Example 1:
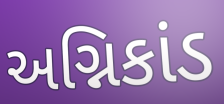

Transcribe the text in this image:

અગ્નિકાંડ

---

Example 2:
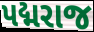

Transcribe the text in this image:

પદ્મરાજ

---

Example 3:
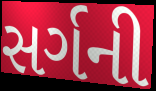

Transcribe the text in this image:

સર્ગની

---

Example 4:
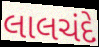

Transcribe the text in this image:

લાલચંદે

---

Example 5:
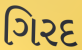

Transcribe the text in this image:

ગિરદ